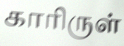
காரிருள்